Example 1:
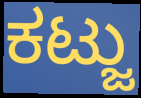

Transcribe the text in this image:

ಕಟ್ಜು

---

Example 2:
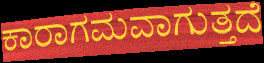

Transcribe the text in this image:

ಕಾರಾಗಮವಾಗುತ್ತದೆ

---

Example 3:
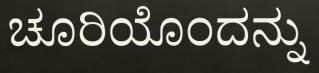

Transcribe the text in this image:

ಚೂರಿಯೊಂದನ್ನು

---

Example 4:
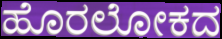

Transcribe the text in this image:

ಹೊರಲೋಕದ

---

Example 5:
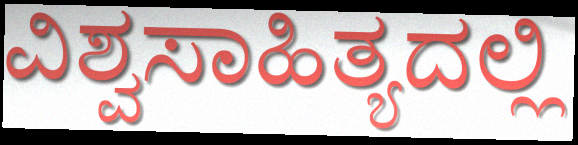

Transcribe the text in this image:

ವಿಶ್ವಸಾಹಿತ್ಯದಲ್ಲಿ